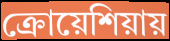
ক্রোয়েশিয়ায়